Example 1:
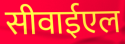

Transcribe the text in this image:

सीवाईएल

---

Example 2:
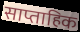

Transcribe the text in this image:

साप्ताहिक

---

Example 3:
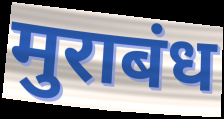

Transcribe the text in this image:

मुराबंध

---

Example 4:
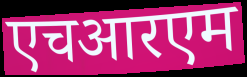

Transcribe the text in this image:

एचआरएम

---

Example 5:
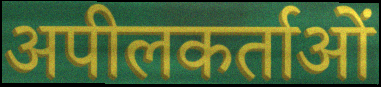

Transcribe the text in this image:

अपीलकर्ताओं